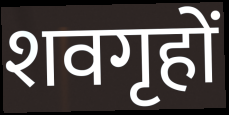
शवगृहों